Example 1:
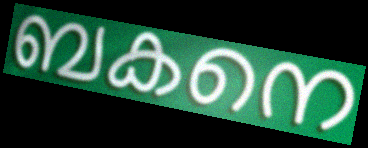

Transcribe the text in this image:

ബകനെ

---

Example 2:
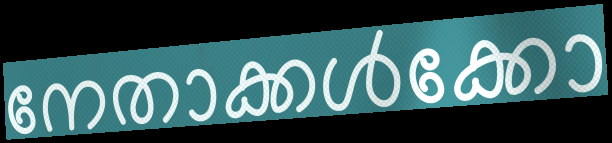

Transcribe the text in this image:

നേതാക്കൾക്കോ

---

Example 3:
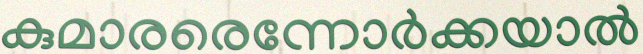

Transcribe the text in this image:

കുമാരരെന്നോർക്കയാൽ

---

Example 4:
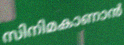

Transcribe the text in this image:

സിനിമകാണാൻ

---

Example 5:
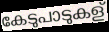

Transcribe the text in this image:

കേടുപാടുകള്